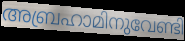
അബ്രഹാമിനുവേണ്ടി